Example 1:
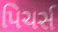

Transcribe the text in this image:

પિચર્સ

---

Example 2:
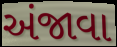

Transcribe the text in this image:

અંજાવા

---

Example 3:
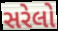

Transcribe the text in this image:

સરેલો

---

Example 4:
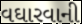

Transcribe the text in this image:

વઘારવાની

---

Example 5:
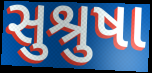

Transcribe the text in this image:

સુશ્રુષા